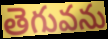
తెగువను